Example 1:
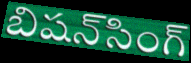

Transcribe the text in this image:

బిషన్‌సింగ్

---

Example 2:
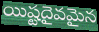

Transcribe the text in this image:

యిష్టదైవమైన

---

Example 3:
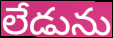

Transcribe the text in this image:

లేడును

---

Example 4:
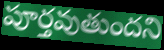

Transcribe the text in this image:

పూర్తవుతుందని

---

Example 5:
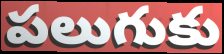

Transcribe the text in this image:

పలుగుకు